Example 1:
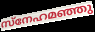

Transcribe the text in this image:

സ്നേഹമഞ്ഞു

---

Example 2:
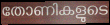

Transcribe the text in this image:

തോണികളുടെ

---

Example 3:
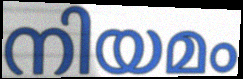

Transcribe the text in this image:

നിയമം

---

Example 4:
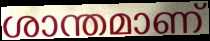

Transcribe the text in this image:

ശാന്തമാണ്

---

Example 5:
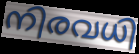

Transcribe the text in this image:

നിരവധി